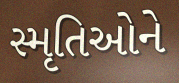
સ્મૃતિઓને